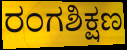
ರಂಗಶಿಕ್ಷಣ